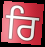
ਰਿ